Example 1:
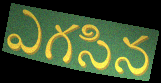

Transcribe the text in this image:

ఎగసిన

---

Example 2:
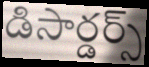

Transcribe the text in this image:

డిసార్డర్స్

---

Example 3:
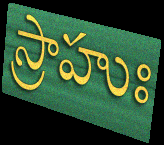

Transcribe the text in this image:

స్రాహుః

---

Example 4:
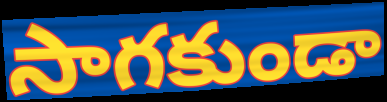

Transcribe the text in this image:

సాగకుండా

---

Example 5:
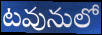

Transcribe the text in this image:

టవునులో